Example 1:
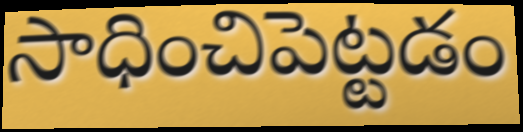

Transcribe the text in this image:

సాధించిపెట్టడం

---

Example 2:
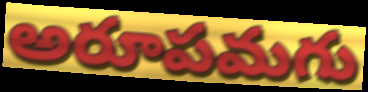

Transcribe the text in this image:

అరూపమగు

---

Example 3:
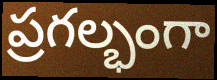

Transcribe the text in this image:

ప్రగల్భంగా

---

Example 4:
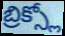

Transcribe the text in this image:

బ్రిక్స్లో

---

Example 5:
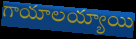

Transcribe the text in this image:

గాయాలయ్యాయి